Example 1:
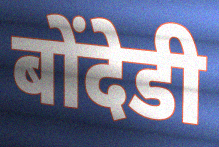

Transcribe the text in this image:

बोंदेडी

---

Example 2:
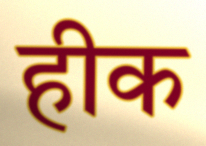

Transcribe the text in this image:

हीक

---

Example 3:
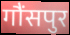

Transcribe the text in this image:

गौंसपुर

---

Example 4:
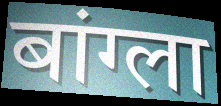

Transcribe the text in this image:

बांग्‍ला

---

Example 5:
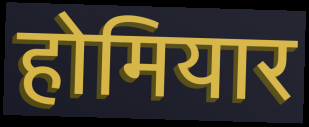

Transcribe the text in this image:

होमियार